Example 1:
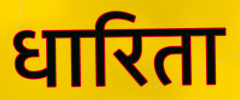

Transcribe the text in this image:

धारिता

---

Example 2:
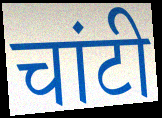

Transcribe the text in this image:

चांटी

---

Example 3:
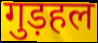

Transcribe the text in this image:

गुड़हल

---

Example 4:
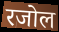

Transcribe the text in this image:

रजोल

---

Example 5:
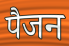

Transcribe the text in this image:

पैजन